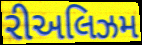
રીઅલિઝમ